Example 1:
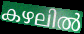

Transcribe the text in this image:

കഴലിൽ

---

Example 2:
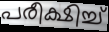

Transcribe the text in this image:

പരീക്ഷിച്ച്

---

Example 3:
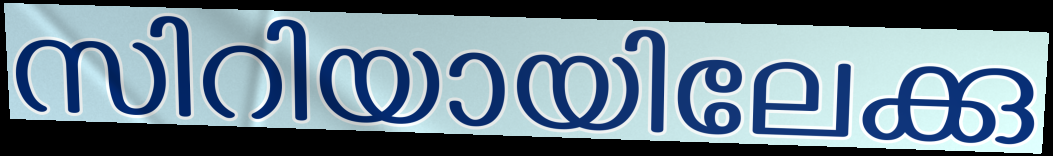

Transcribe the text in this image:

സിറിയായിലേക്കു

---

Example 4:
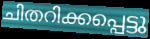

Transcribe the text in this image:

ചിതറിക്കപ്പെട്ടു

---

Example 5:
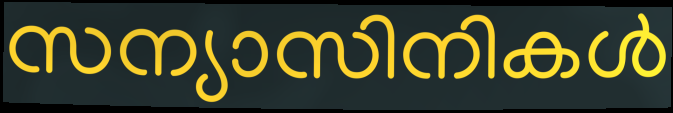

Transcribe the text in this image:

സന്യാസിനികൾ